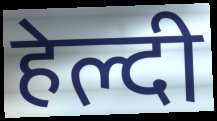
हेल्‍दी